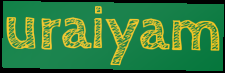
uraiyam